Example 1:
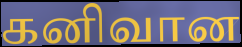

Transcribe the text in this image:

கனிவான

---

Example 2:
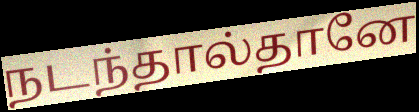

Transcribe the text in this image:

நடந்தால்தானே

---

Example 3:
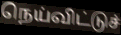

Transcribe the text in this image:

நெய்விட்டுச்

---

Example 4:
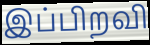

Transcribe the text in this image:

இப்பிறவி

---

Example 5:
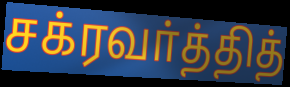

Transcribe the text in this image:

சக்ரவர்த்தித்